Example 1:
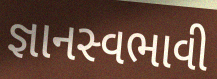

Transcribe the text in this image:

જ્ઞાનસ્વભાવી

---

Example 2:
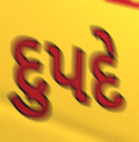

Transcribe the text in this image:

દુપદે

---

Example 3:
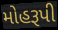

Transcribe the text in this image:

મોહરૂપી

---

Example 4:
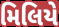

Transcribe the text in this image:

મિલિયે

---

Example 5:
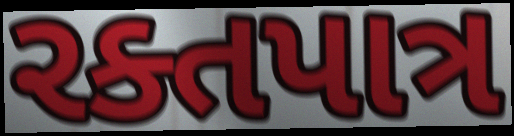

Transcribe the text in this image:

રક્તપાત્ર